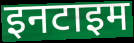
इनटाइम